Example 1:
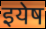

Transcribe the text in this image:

इयेष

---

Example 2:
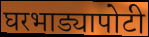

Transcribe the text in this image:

घरभाड्यापोटी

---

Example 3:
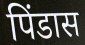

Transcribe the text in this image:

पिंडास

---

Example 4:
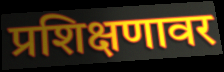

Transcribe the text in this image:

प्रशिक्षणावर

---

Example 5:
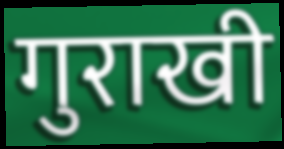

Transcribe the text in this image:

गुराखी